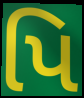
પિ